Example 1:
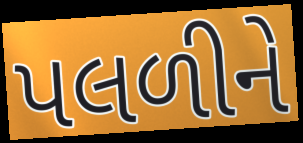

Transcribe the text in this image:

પલળીને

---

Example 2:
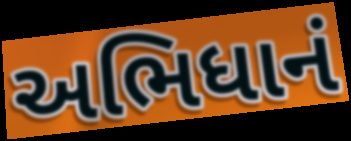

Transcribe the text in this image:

અભિધાનં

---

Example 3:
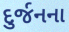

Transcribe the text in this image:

દુર્જનના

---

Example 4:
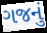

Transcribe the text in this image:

ગજનું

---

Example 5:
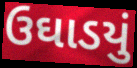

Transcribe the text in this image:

ઉઘાડયું